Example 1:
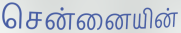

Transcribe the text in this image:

சென்னையின்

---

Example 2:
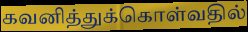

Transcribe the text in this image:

கவனித்துக்கொள்வதில்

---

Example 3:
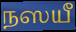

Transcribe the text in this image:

நஸயீ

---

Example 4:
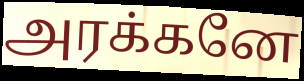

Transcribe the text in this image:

அரக்கனே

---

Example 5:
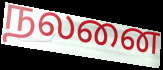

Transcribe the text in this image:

நலனை